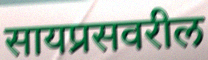
सायप्रसवरील